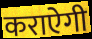
कराऐगी